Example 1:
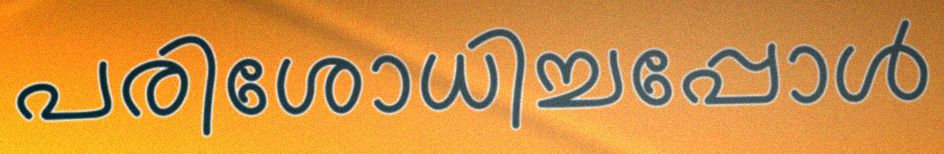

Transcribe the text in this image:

പരിശോധിച്ചപ്പോൾ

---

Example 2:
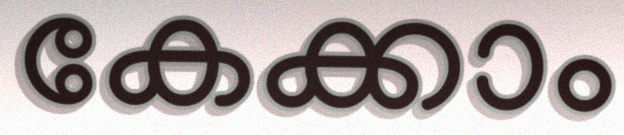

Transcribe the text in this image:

കേക്കാം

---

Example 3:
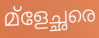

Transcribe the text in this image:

മ്ളേച്ഛരെ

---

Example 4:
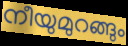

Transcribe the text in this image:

നീയുമുറങ്ങും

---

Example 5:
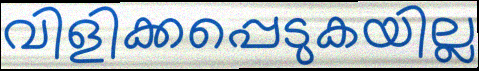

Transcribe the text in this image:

വിളിക്കപ്പെടുകയില്ല